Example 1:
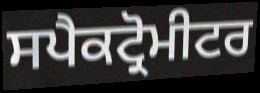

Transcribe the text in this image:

ਸਪੈਕਟ੍ਰੋਮੀਟਰ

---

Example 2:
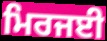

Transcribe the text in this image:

ਮਿਰਜਈ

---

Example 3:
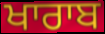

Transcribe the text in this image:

ਖਾਰਾਬ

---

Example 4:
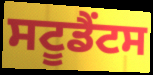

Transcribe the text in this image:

ਸਟੂਡੈਂਟਸ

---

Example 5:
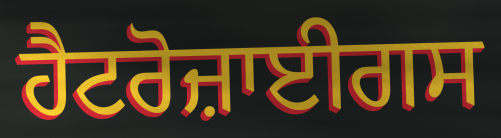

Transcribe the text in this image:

ਹੈਟਰੋਜ਼ਾਈਗਸ